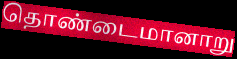
தொண்டைமானாறு